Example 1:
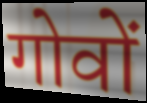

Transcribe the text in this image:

गोवों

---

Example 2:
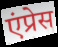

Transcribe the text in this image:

एंप्रेस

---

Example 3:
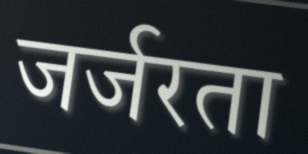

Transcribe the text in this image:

जर्जरता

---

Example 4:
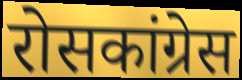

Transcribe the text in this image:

रोसकांग्रेस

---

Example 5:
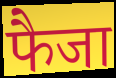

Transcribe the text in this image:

फैजा